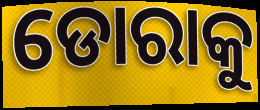
ଡୋରାକୁ